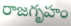
రాజగృహం